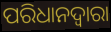
ପରିଧାନଦ୍ୱାରା